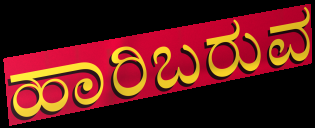
ಹಾರಿಬರುವ